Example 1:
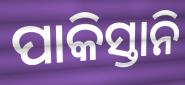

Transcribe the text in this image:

ପାକିସ୍ତାନି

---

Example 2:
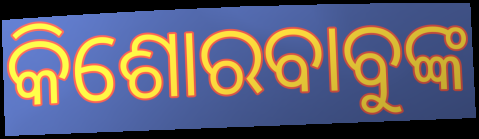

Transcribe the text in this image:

କିଶୋରବାବୁଙ୍କ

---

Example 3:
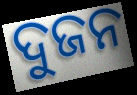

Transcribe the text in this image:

ଦୁଜନ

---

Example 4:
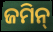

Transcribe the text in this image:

ଜମିନ୍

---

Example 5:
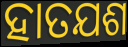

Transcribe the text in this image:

ହାତଯଶ